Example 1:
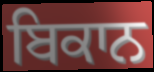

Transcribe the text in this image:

ਬਿਕਾਨ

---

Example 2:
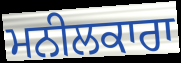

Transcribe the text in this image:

ਮਨੀਲਕਾਰਾ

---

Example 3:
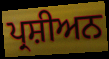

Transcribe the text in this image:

ਪ੍ਰਸ਼ੀਅਨ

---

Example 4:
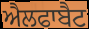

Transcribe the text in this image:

ਐਲਫਾਬੈਟ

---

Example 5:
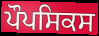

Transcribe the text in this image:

ਪੌਪਸਿਕਸ